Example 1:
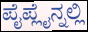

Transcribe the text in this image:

ಪೈಪ್ಲೈನ್ನಲ್ಲಿ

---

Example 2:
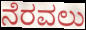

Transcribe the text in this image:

ನೆರವಲು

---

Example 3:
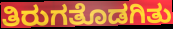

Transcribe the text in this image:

ತಿರುಗತೊಡಗಿತು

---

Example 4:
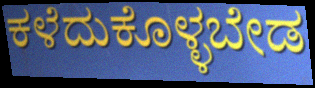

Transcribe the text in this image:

ಕಳೆದುಕೊಳ್ಳಬೇಡ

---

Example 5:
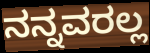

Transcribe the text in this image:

ನನ್ನವರಲ್ಲ